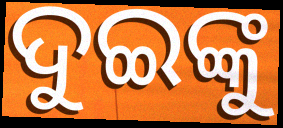
ଦୁଇଙ୍କୁ